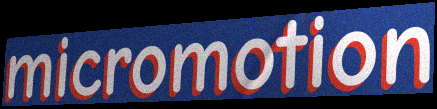
micromotion